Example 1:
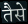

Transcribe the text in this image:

तैसे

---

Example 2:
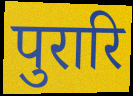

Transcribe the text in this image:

पुरारि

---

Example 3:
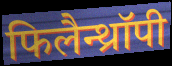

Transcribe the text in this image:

फिलैन्थ्रॉपी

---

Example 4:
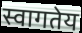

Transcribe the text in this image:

स्वागतेय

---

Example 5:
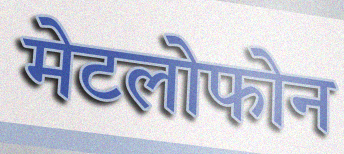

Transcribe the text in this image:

मेटलोफोन